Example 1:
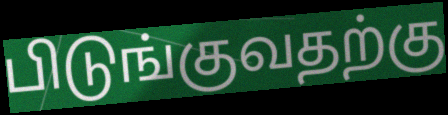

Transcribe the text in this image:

பிடுங்குவதற்கு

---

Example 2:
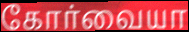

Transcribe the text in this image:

கோர்வையா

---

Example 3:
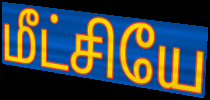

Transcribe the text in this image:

மீட்சியே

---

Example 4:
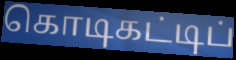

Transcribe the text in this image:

கொடிகட்டிப்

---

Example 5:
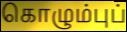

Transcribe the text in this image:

கொழும்புப்